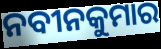
ନବୀନକୁମାର